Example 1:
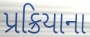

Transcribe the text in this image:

પ્રક્રિયાના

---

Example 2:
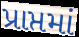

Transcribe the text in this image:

પ્રાપ્તમાં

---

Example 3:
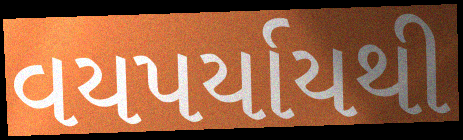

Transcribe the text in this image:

વયપર્યાયથી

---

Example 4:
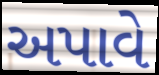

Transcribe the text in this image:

અપાવે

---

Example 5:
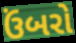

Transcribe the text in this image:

ઉંબરો